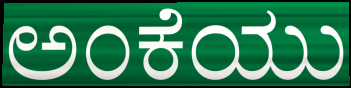
ಅಂಕೆಯು